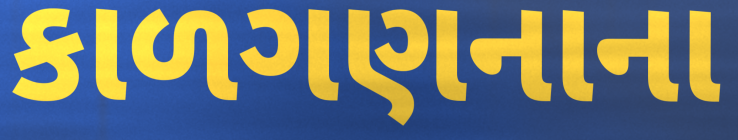
કાળગણનાના